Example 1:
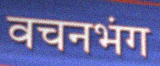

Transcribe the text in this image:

वचनभंग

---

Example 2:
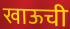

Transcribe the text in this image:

खाऊची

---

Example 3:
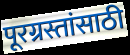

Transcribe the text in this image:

पूरग्रस्तांसाठी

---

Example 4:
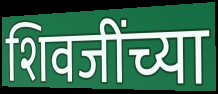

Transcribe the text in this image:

शिवजींच्या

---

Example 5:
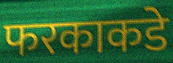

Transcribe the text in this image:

फरकाकडे